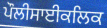
ਪੌਲੀਸਾਈਕਲਿਕ